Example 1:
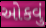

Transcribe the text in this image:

ઓકવું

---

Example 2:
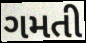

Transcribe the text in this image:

ગમતી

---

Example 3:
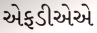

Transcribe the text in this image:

એફડીએએ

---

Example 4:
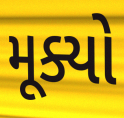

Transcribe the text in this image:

મૂક્યો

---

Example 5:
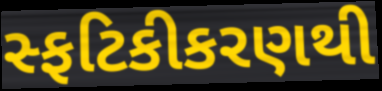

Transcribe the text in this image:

સ્ફટિકીકરણથી